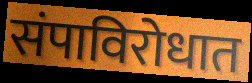
संपाविरोधात